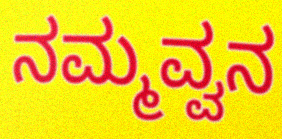
ನಮ್ಮವ್ವನ